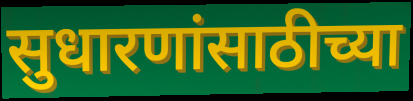
सुधारणांसाठीच्या